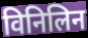
विनिलिन